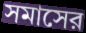
সমাসের